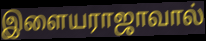
இளையராஜாவால்